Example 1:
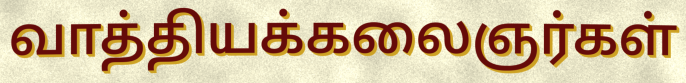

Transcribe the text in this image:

வாத்தியக்கலைஞர்கள்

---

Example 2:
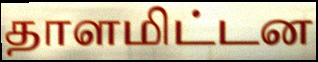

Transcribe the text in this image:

தாளமிட்டன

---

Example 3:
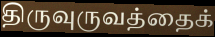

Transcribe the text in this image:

திருவுருவத்தைக்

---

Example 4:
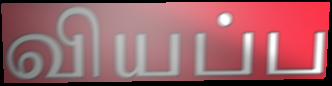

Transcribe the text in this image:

வியப்ப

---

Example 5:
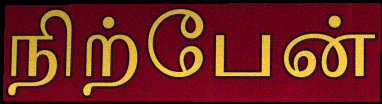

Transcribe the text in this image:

நிற்பேன்